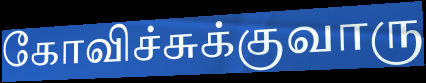
கோவிச்சுக்குவாரு